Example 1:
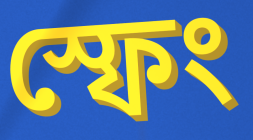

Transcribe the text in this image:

স্ফেং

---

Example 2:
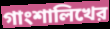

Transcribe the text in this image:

গাংশালিখের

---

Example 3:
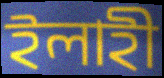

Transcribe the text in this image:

ইলাহী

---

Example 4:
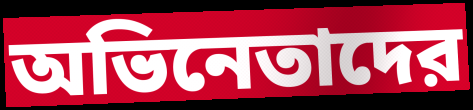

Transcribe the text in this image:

অভিনেতাদের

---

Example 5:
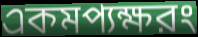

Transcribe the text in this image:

একমপ্যক্ষরং